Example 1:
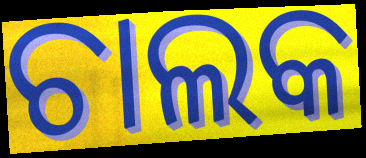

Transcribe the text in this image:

ଚାଲକ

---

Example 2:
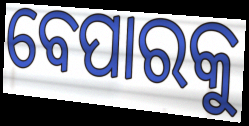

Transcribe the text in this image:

ବେପାରକୁ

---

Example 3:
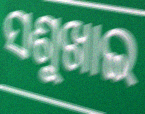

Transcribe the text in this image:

ସଶୁଖାଇ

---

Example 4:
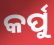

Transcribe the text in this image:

କର୍ପୁ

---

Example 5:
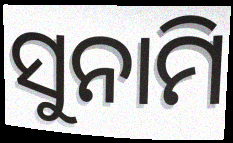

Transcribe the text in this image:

ସୁନାମି